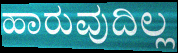
ಹಾರುವುದಿಲ್ಲ